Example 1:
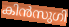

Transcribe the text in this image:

കിൻസുഗി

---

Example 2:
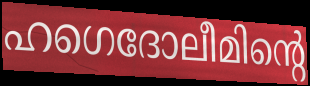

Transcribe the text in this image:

ഹഗെദോലീമിന്റെ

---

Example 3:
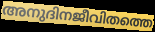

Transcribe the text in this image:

അനുദിനജീവിതത്തെ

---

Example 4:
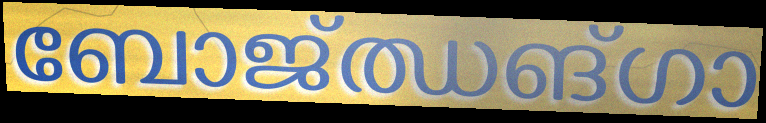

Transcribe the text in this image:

ബോജ്ഝങ്ഗാ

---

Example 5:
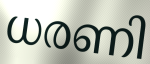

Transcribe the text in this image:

ധരണി